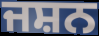
ਜਸ਼ਨ